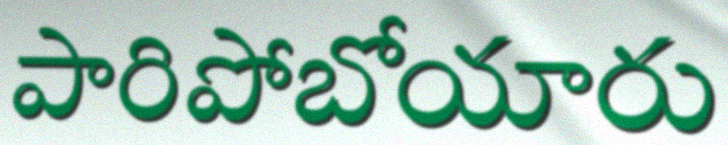
పారిపోబోయారు